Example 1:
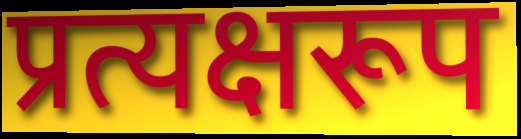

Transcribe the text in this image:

प्रत्यक्षरूप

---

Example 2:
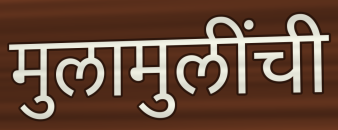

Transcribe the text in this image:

मुलामुलींची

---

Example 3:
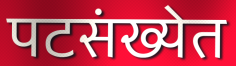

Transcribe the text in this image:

पटसंख्येत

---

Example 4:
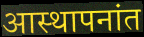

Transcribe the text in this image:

आस्थापनांत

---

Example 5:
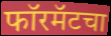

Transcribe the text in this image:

फॉरमॅटचा